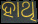
ହାଥି